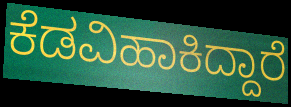
ಕೆಡವಿಹಾಕಿದ್ದಾರೆ